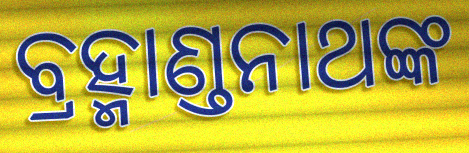
ବ୍ରହ୍ମାଣ୍ଡନାଥଙ୍କ